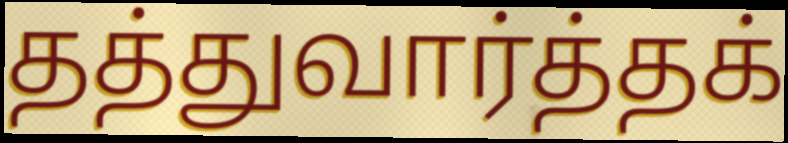
தத்துவார்த்தக்